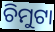
ଚିମୁଟା